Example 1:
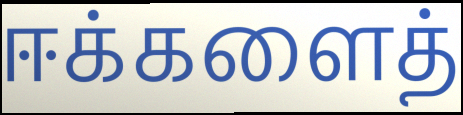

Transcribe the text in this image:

ஈக்களைத்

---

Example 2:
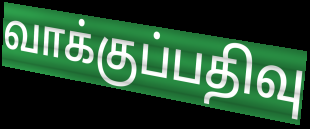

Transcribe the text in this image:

வாக்குப்பதிவு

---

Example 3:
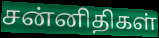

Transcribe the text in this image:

சன்னிதிகள்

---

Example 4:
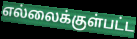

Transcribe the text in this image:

எல்லைக்குள்பட்ட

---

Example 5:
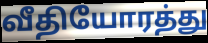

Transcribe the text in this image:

வீதியோரத்து